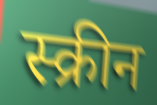
स्क्रीन